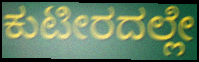
ಕುಟೀರದಲ್ಲೇ